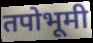
तपोभूमी